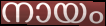
നായം